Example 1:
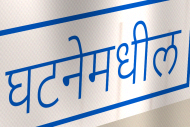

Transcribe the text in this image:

घटनेमधील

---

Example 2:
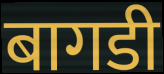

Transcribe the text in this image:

बागडी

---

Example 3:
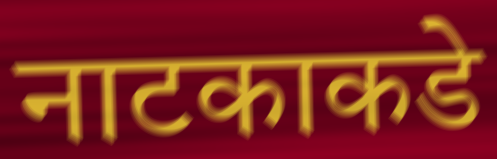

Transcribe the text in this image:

नाटकाकडे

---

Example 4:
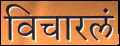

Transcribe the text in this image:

विचारलं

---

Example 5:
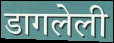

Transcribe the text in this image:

डागलेली